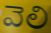
వెలి